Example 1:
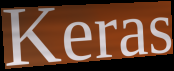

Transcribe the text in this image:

Keras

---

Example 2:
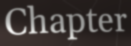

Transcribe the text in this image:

Chapter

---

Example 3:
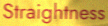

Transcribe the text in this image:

Straightness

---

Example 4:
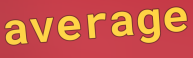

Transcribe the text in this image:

average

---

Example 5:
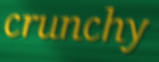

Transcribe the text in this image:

crunchy